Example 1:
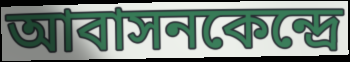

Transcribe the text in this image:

আবাসনকেন্দ্রে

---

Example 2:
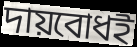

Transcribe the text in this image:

দায়বোধই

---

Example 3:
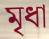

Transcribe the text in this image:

মৃধা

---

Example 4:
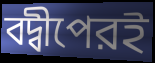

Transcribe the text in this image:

বদ্বীপেরই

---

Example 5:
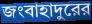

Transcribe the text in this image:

জংবাহাদুরের